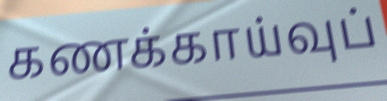
கணக்காய்வுப்